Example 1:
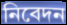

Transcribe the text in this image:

নিবেদন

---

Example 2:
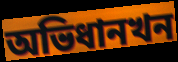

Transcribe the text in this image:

অভিধানখন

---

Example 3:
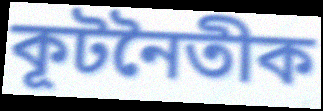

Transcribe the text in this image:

কূটনৈতীক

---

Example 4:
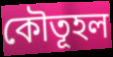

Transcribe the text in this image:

কৌতূহল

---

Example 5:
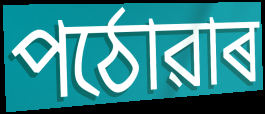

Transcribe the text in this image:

পঠোৱাৰ